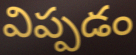
విప్పడం